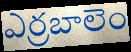
ఎర్రబాలెం